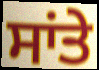
ਸਾਂਤੇ